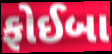
ફોઈબા